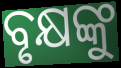
ବୃକ୍ଷଙ୍କୁ